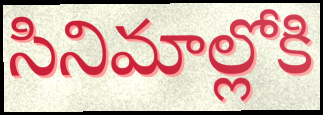
సినిమాల్లోకి